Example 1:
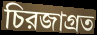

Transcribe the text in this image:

চিরজাগ্রত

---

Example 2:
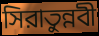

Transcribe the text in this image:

সিরাতুন্নবী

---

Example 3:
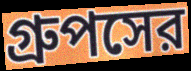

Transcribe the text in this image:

গ্রুপসের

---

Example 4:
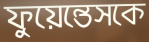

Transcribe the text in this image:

ফুয়েন্তেসকে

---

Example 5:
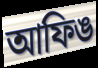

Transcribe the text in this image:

আফিঙ